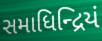
સમાધિન્દ્રિયં